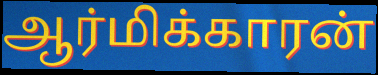
ஆர்மிக்காரன்